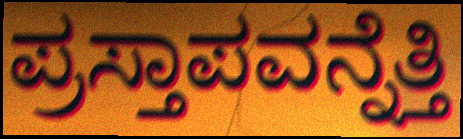
ಪ್ರಸ್ತಾಪವನ್ನೆತ್ತಿ